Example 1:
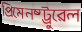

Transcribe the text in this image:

প্ৰিমেনষ্ট্ৰুৱেল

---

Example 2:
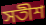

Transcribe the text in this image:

সতীশ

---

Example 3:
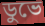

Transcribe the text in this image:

ডুভে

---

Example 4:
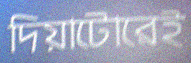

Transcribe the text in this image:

দিয়াটোৱেই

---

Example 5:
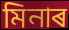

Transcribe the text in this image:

মিনাৰ